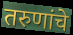
तरुणांचे